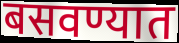
बसवण्यात